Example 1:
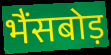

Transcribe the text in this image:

भैंसबोड़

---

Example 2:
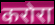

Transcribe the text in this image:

करोरा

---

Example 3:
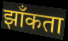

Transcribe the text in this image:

झाँकता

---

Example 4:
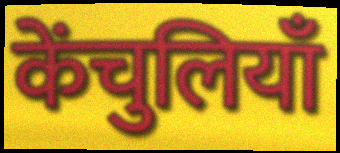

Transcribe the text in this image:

केंचुलियाँ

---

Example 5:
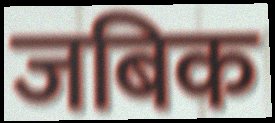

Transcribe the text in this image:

जबिक